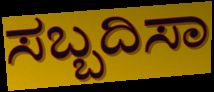
ಸಬ್ಬದಿಸಾ